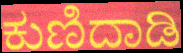
ಕುಣಿದಾಡಿ